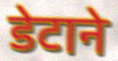
डेटाने